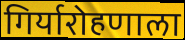
गिर्यारोहणाला